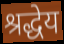
श्रद्धेय